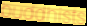
buddhists